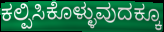
ಕಲ್ಪಿಸಿಕೊಳ್ಳುವುದಕ್ಕೂ